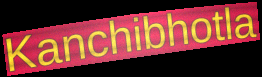
Kanchibhotla